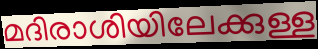
മദിരാശിയിലേക്കുള്ള